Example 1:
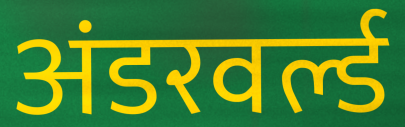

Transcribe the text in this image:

अंडरवर्ल्ड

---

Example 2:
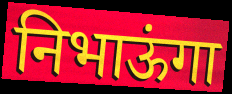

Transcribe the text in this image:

निभाऊंगा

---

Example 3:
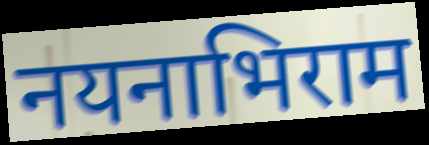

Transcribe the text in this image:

नयनाभिराम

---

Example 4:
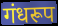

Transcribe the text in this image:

गंधरूप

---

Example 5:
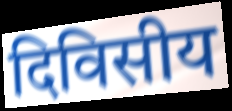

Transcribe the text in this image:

दिविसीय